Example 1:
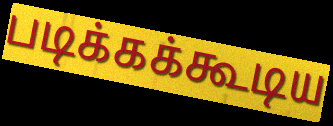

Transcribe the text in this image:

படிக்கக்கூடிய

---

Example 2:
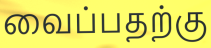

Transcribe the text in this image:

வைப்பதற்கு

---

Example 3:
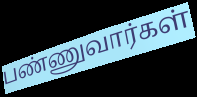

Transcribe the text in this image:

பண்ணுவார்கள்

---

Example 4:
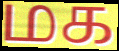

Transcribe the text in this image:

மக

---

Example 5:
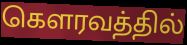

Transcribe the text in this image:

கௌரவத்தில்